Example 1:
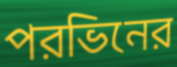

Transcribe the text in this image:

পরভিনের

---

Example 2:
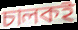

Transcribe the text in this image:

চালকই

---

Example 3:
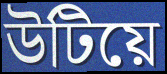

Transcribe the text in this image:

উটিয়ে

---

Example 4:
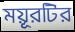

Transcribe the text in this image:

ময়ূরটির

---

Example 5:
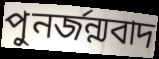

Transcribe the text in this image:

পুনর্জন্মবাদ